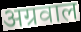
अग्रवाल